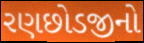
રણછોડજીનો